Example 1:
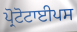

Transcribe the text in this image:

ਪ੍ਰੋਟੋਟਾਈਪਸ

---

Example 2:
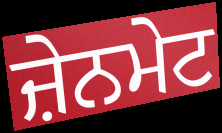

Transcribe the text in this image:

ਜ਼ੇਨਮੇਟ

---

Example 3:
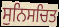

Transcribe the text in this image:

ਸੁਨਿਸਚਿਤ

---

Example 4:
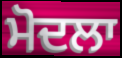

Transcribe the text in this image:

ਮੋਦਲਾ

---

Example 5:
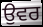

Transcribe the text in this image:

ਉਵਰ